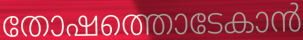
തോഷത്തൊടേകാൻ